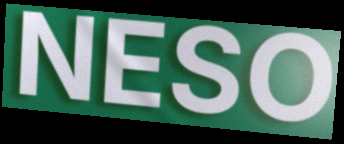
NESO